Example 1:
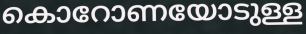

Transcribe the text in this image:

കൊറോണയോടുള്ള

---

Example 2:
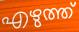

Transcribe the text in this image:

എഴുത്ത്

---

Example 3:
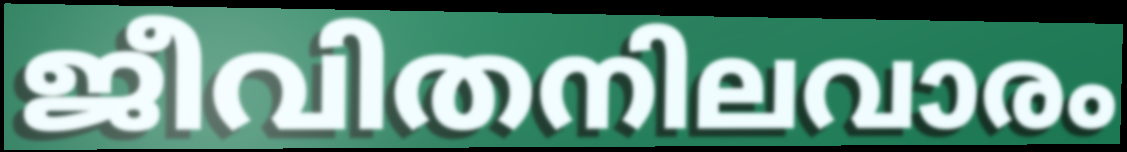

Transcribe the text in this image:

ജീവിതനിലവാരം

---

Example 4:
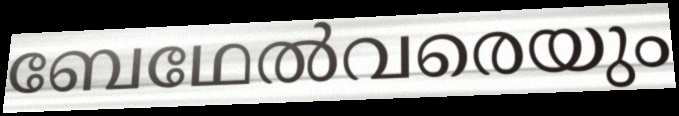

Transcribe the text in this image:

ബേഥേൽവരെയും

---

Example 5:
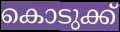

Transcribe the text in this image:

കൊടുക്ക്